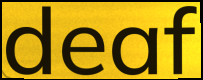
deaf